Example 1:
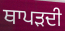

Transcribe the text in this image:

ਥਾਪੜਦੀ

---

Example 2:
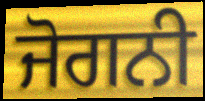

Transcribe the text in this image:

ਜੋਗਨੀ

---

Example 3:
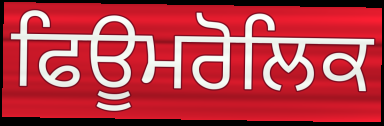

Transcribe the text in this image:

ਫਿਊਮਰੋਲਿਕ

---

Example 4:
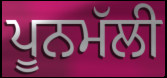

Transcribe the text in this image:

ਪੂਨਮੱਲੀ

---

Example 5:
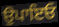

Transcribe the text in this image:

ਉਪਾਇਓ